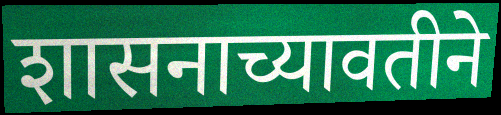
शासनाच्यावतीने